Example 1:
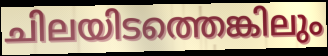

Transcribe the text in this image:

ചിലയിടത്തെങ്കിലും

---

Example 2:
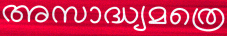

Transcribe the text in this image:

അസാദ്ധ്യമത്രെ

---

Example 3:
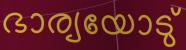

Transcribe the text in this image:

ഭാര്യയോടു്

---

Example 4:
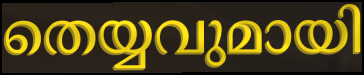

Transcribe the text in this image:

തെയ്യവുമായി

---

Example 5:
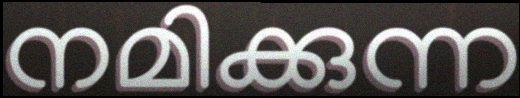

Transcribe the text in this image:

നമിക്കുന്ന